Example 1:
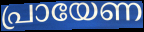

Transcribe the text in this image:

പ്രായേണ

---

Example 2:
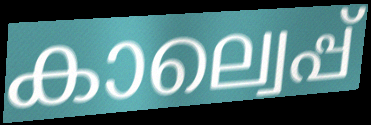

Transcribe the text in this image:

കാല്വെപ്പ്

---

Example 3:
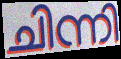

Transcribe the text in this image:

ചിന്നി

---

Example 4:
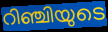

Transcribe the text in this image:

റിഞ്ചിയുടെ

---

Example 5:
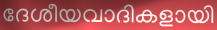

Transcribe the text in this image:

ദേശീയവാദികളായി